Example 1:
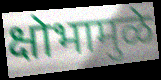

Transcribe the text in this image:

क्षोभामुळे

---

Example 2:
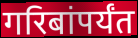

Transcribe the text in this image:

गरिबांपर्यंत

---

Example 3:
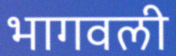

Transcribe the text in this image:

भागवली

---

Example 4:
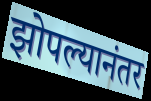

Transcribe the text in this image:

झोपल्यानंतर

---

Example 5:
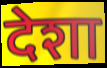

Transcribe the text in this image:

देशा